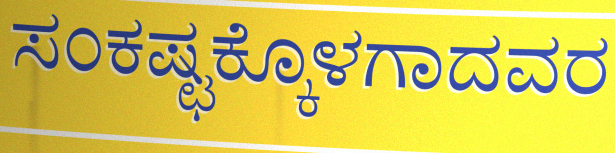
ಸಂಕಷ್ಟಕ್ಕೊಳಗಾದವರ